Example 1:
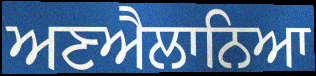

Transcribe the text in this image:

ਅਣਐਲਾਨਿਆ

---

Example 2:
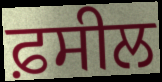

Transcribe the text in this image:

ਫ਼ਸੀਲ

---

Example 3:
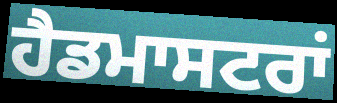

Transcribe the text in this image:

ਹੈਡਮਾਸਟਰਾਂ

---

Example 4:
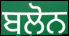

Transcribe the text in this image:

ਬਲੋਨ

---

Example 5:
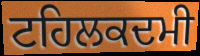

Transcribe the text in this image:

ਟਹਿਲਕਦਮੀ